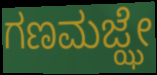
ಗಣಮಜ್ಝೇ